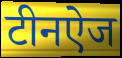
टीनऐज